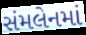
સંમલેનમાં